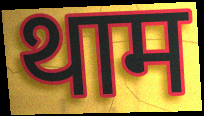
थाम